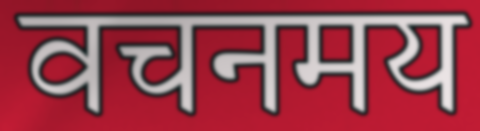
वचनमय